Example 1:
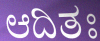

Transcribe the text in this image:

ಆದಿತಃ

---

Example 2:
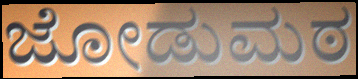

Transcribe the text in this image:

ಜೋಡುಮಠ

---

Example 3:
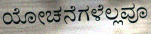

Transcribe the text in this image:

ಯೋಚನೆಗಳೆಲ್ಲವೂ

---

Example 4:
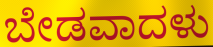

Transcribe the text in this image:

ಬೇಡವಾದಳು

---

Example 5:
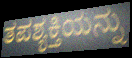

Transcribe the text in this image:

ತಪಶ್ಯಕ್ತಿಯನ್ನು